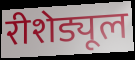
रीशेड्यूल